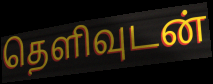
தெளிவுடன்